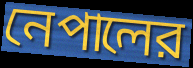
নেপালের